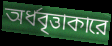
অর্ধবৃত্তাকারে